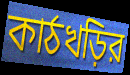
কাঠখড়ির